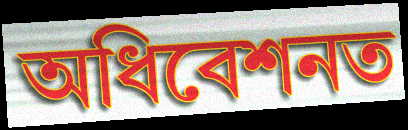
অধিবেশনত